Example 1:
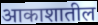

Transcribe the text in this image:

आकाशातील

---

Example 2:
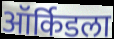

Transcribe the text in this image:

ऑर्किडला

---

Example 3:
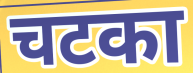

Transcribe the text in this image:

चटका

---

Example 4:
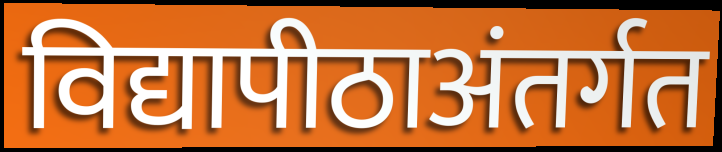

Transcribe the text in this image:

विद्यापीठाअंतर्गत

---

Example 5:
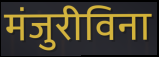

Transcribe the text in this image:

मंजुरीविना